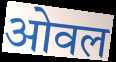
ओवल